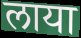
लाया